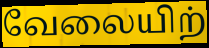
வேலையிற்